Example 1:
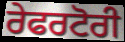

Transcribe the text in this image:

ਰੇਫਰਟੋਰੀ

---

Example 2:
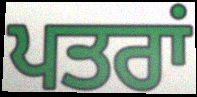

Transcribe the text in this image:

ਪਤਰਾਂ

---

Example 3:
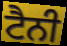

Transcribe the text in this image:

ਟੈਨੀ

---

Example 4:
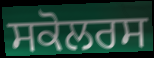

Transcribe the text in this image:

ਸਕੋਲਰਸ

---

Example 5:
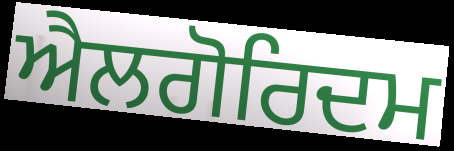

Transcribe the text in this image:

ਐਲਗੋਰਿਦਮ